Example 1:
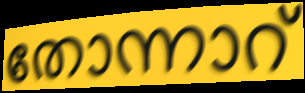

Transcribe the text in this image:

തോന്നാറ്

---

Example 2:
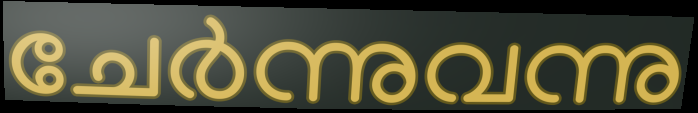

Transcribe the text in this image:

ചേർന്നുവന്നു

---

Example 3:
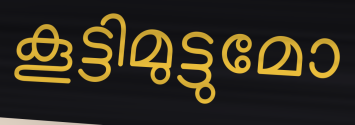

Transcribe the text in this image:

കൂട്ടിമുട്ടുമോ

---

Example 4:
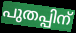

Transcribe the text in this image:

പുതപ്പിന്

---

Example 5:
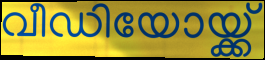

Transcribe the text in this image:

വീഡിയോയ്ക്ക്